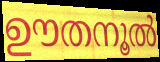
ഊതനൂൽ